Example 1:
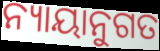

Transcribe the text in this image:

ନ୍ୟାୟାନୁଗତ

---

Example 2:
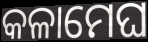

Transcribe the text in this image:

କଳାମେଘ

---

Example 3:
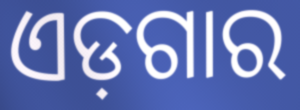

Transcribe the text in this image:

ଏଡ଼ଗାର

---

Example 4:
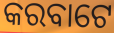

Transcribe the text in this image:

କରବାଟେ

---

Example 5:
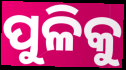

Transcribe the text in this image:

ପୁଳିକୁ